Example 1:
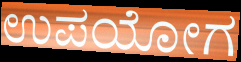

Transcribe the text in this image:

ಉಪಯೋಗ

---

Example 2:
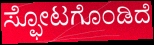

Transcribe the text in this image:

ಸ್ಫೋಟಗೊಂಡಿದೆ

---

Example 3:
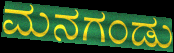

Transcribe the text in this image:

ಮನಗಂಡು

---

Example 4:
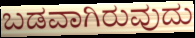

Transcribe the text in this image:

ಬಡವಾಗಿರುವುದು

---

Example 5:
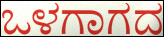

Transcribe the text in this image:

ಒಳಗಾಗದ